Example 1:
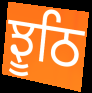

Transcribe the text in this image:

ਝੂਠਿ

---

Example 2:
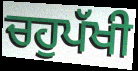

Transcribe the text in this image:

ਚਹੁਪੱਖੀ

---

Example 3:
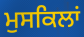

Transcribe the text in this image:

ਮੁਸਕਿਲਾਂ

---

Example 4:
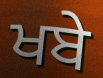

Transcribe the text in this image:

ਖਬੇ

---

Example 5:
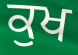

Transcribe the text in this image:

ਕੁਖ